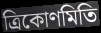
ত্ৰিকোণমিতি